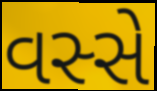
વસ્સે